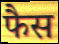
फैस